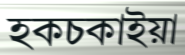
হকচকাইয়া